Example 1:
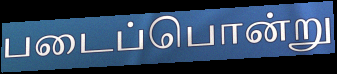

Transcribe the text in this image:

படைப்பொன்று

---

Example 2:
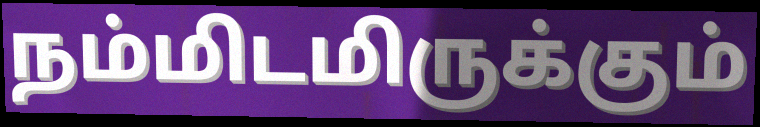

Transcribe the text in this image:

நம்மிடமிருக்கும்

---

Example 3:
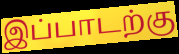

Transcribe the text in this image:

இப்பாடற்கு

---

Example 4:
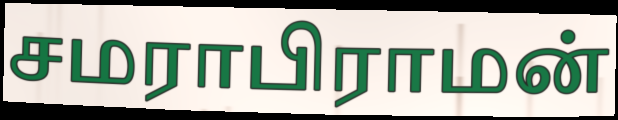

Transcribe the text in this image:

சமராபிராமன்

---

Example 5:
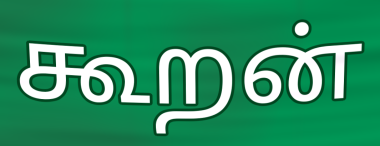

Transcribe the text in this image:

கூறன்